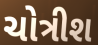
ચોત્રીશ